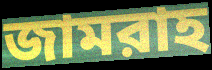
জামরাহ